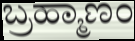
ಬ್ರಹ್ಮಾಣಂ